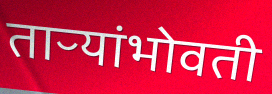
ताऱ्यांभोवती